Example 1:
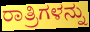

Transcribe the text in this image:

ರಾತ್ರಿಗಳನ್ನು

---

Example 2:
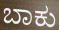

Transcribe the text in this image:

ಬಾಕು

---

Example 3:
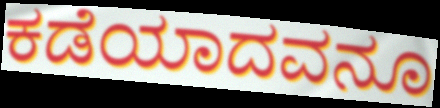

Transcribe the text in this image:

ಕಡೆಯಾದವನೂ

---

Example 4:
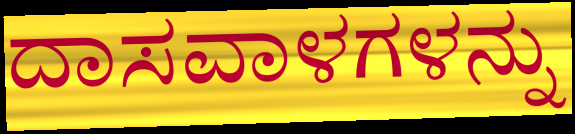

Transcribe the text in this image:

ದಾಸವಾಳಗಳನ್ನು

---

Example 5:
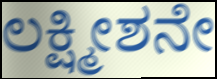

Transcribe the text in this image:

ಲಕ್ಷ್ಮೀಶನೇ